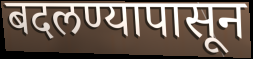
बदलण्यापासून